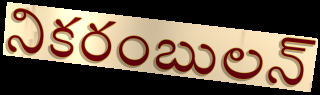
నికరంబులన్